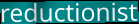
reductionist